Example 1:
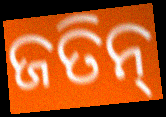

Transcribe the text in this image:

ଜତିନ୍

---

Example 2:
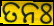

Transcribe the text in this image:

ତନଃ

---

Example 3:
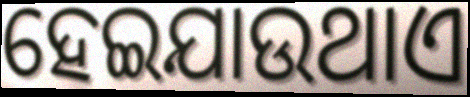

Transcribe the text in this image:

ହେଇଯାଉଥାଏ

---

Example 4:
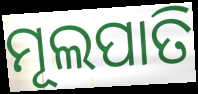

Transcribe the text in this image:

ମୂଲପାତି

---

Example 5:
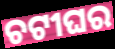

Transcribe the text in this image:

ଚଟୀଘର